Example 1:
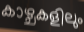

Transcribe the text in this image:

കാഴ്ചകളിലും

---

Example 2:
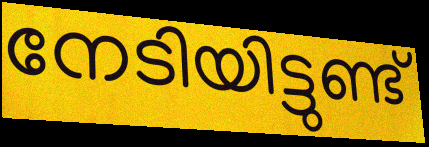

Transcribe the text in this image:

നേടിയിട്ടുണ്ട്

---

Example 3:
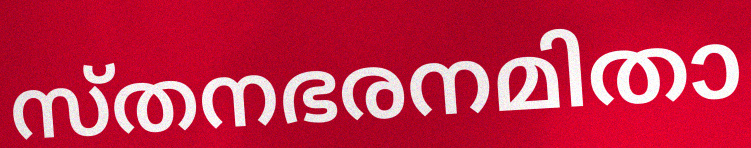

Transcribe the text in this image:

സ്തനഭരനമിതാ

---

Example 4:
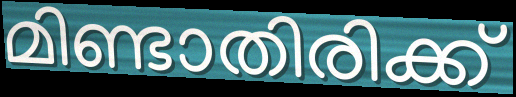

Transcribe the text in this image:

മിണ്ടാതിരിക്ക്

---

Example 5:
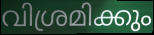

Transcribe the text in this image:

വിശ്രമിക്കും